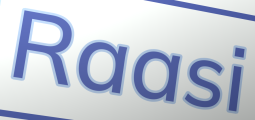
Raasi